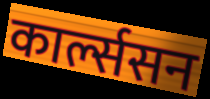
कार्ल्ससन